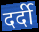
दर्दी